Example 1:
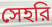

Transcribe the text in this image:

সেহরি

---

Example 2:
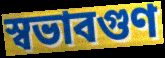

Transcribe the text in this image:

স্বভাবগুণ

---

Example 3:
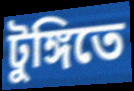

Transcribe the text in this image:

টুঙ্গিতে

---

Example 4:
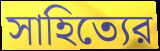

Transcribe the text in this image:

সাহিত্যের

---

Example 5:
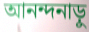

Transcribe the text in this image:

আনন্দনাড়ু